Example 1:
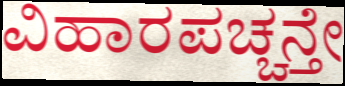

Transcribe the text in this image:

ವಿಹಾರಪಚ್ಚನ್ತೇ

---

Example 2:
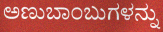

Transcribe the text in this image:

ಅಣುಬಾಂಬುಗಳನ್ನು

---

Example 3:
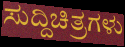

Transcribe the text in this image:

ಸುದ್ದಿಚಿತ್ರಗಳು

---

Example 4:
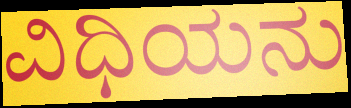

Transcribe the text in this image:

ವಿಧಿಯನು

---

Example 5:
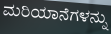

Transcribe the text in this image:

ಮರಿಯಾನೆಗಳನ್ನು